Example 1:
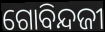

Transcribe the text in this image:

ଗୋବିନ୍ଦଜୀ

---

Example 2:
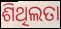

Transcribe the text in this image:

ଶିଥିଲତା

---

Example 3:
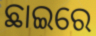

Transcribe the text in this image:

ଛାଇରେ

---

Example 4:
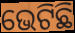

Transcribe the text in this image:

ଭେଟିଛି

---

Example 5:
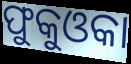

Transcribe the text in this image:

ଫୁକୁଓକା